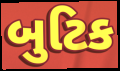
બુટિક